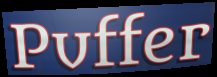
Puffer